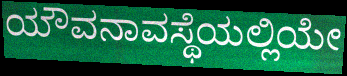
ಯೌವನಾವಸ್ಥೆಯಲ್ಲಿಯೇ